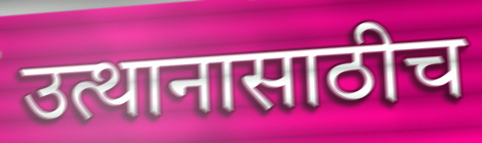
उत्थानासाठीच